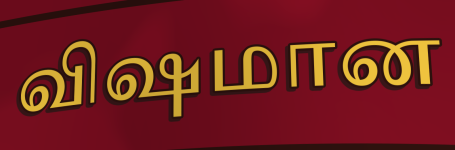
விஷமான